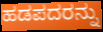
ಹಡಪದರನ್ನು